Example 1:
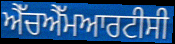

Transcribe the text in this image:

ਐੱਚਐੱਮਆਰਟੀਸੀ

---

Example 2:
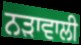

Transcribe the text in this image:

ਨੜਾਵਾਲੀ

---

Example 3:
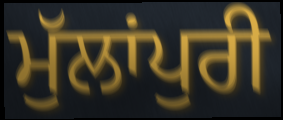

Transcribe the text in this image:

ਮੁੱਲਾਂਪੁਰੀ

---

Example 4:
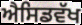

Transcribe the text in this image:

ਐਸਿਡਵੱਖ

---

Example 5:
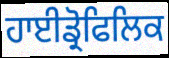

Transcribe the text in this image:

ਹਾਈਡ੍ਰੋਫਿਲਿਕ